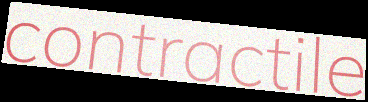
contractile